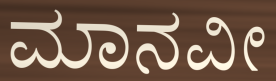
ಮಾನವೀ